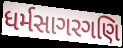
ધર્મસાગરગણિ